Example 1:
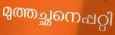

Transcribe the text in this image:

മുത്തച്ഛനെപ്പറ്റി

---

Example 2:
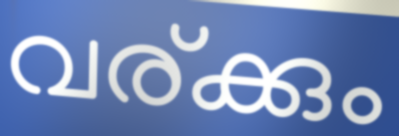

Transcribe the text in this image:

വര്ക്കും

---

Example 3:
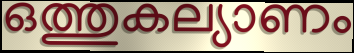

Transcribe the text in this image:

ഒത്തുകല്യാണം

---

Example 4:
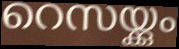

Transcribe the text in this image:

റെസയ്ക്കും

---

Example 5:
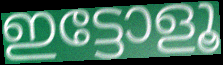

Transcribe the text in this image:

ഇട്ടോളൂ